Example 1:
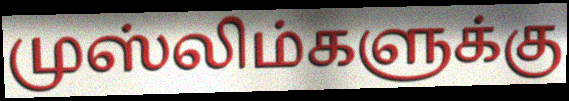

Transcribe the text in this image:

முஸ்லிம்களுக்கு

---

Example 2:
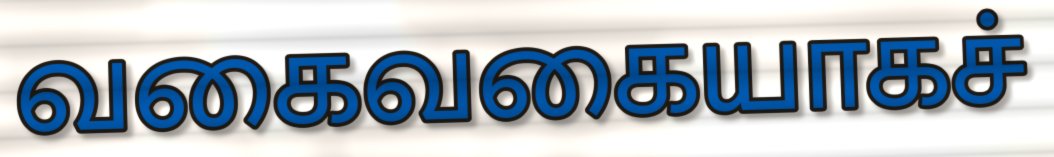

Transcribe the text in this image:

வகைவகையாகச்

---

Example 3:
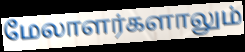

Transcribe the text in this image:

மேலாளர்களாலும்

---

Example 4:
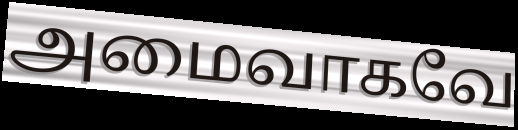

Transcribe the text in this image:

அமைவாகவே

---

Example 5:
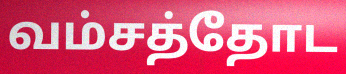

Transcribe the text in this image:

வம்சத்தோட